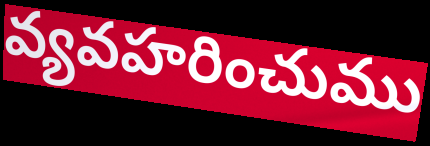
వ్యవహరించుము